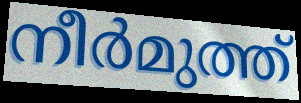
നീർമുത്ത്